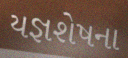
યજ્ઞશેષના